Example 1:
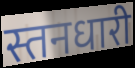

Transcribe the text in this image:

स्‍तनधारी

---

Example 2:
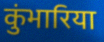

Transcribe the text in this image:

कुंभारिया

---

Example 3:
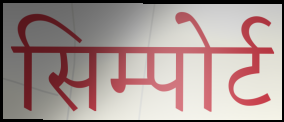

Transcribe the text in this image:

सिम्पोर्ट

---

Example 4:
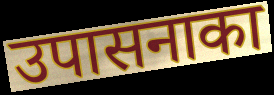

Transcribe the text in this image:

उपासनाका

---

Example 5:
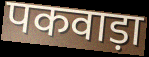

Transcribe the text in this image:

पकवाड़ा